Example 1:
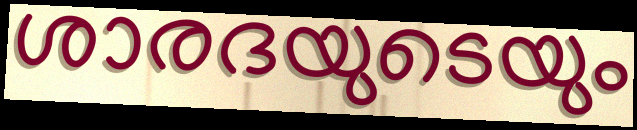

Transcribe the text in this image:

ശാരദയുടെയും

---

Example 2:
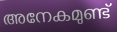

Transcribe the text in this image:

അനേകമുണ്ട്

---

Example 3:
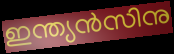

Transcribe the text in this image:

ഇന്ത്യൻസിനു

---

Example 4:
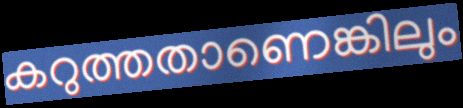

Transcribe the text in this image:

കറുത്തതാണെങ്കിലും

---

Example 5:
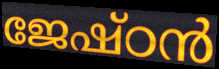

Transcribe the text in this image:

ജേഷ്ഠൻ